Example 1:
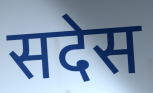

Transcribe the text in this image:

सदेस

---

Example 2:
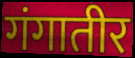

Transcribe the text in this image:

गंगातीर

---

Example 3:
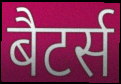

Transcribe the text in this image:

बैटर्स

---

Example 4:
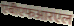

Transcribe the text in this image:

एबीएफआरएल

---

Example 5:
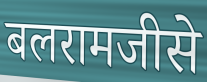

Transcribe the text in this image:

बलरामजीसे